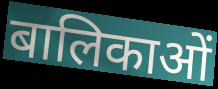
बालिकाओं